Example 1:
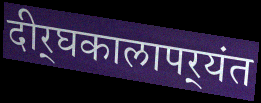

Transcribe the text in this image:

दीर्घकालापर्यंत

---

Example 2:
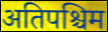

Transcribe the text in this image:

अतिपश्चिम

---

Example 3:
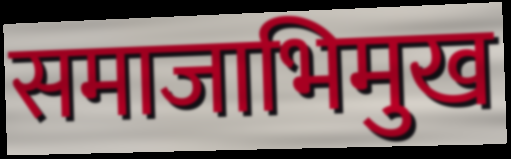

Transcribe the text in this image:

समाजाभिमुख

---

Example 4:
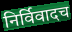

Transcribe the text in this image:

निर्विवादच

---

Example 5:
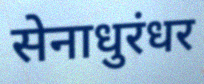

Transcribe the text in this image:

सेनाधुरंधर